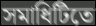
সমাধিটিতে